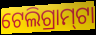
ଟେଲିଗ୍ରାମ୍‍ଟା